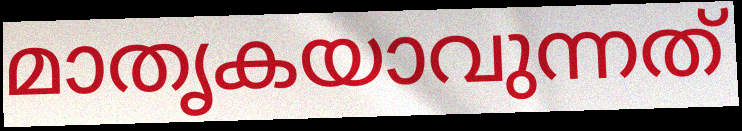
മാതൃകയാവുന്നത്